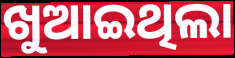
ଖୁଆଇଥିଲା